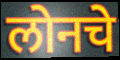
लोनचे